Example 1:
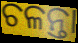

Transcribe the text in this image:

ଚଳନ୍ତା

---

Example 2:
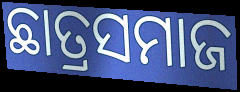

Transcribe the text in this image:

ଛାତ୍ରସମାଜ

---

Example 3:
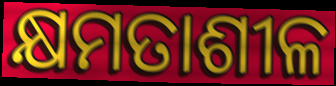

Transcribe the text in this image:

କ୍ଷମତାଶୀଳ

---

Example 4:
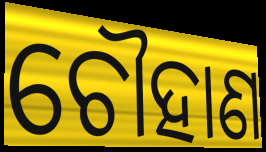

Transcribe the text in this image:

ଚୌହାଣ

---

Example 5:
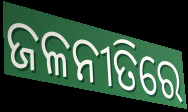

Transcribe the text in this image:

ଜଳନୀତିରେ